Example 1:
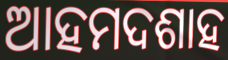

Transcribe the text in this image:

ଆହମଦଶାହ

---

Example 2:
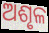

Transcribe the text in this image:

ଅଶୃଳ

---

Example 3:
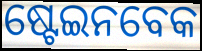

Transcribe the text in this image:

ଷ୍ଟେଇନବେକ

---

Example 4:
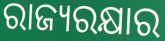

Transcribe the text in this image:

ରାଜ୍ୟରକ୍ଷାର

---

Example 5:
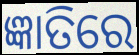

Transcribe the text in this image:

ଜ୍ଞାତିରେ